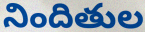
నిందితుల